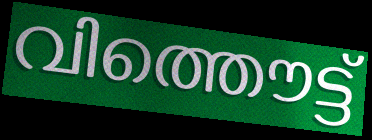
വിത്തൌട്ട്